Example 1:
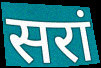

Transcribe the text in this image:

सरां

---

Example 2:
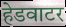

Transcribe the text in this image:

हेडवाटर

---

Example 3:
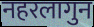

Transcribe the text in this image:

नहरलागुन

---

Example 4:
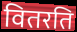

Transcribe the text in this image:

वितरति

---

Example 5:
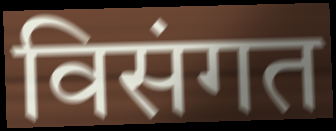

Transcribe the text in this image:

विसंगत